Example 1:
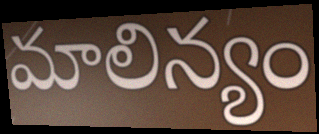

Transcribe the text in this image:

మాలిన్యం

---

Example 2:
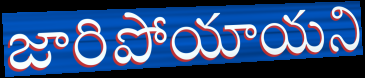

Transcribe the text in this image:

జారిపోయాయని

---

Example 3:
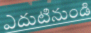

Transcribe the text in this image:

ఎదుటినుండి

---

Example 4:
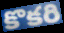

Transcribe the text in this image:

కొకరి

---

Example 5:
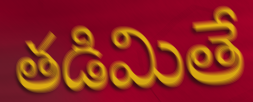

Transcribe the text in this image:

తడిమితే